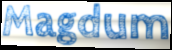
Magdum